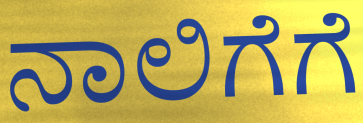
ನಾಲಿಗೆಗೆ